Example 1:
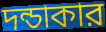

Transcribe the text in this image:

দন্ডাকার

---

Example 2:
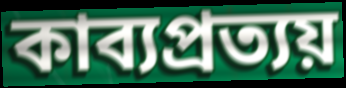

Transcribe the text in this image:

কাব্যপ্রত্যয়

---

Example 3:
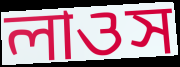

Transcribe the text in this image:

লাওস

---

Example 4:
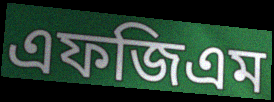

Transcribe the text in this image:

এফজিএম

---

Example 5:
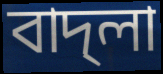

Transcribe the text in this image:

বাদ্‌লা